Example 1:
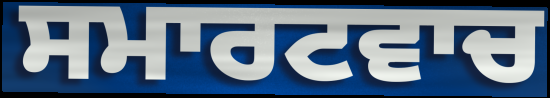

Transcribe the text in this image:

ਸਮਾਰਟਵਾਚ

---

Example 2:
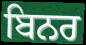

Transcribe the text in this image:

ਬਿਨਰ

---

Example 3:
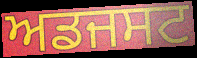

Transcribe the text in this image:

ਅਡਜਸਟ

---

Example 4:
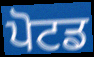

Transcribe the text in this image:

ਪੋਟਡ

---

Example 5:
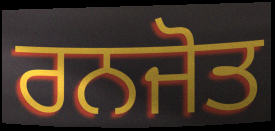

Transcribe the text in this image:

ਰਨਜੋਤ